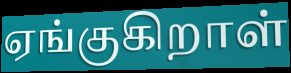
ஏங்குகிறாள்